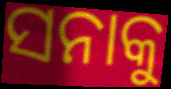
ସନାକୁ